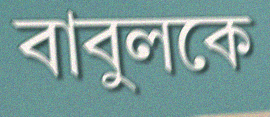
বাবুলকে